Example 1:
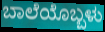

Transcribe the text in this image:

ಬಾಲೆಯೊಬ್ಬಳು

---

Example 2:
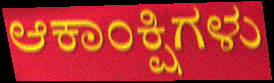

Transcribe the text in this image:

ಆಕಾಂಕ್ಷಿಗಳು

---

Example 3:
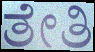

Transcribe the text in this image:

ತೇತಿ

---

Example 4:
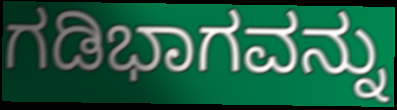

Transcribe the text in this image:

ಗಡಿಭಾಗವನ್ನು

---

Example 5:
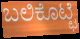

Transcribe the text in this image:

ಬಲಿಕೊಟ್ಟೆ